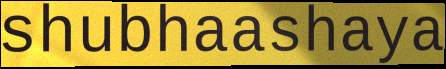
shubhaashaya